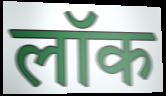
लॉक